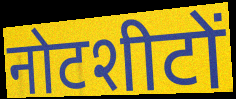
नोटशीटों